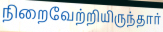
நிறைவேற்றியிருந்தார்